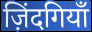
ज़िंदगियाँ